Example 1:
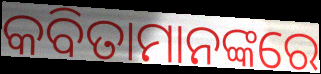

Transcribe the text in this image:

କବିତାମାନଙ୍କରେ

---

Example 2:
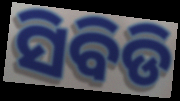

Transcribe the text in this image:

ସିବିଡି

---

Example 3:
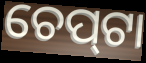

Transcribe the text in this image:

ଚେପ୍‍ଟା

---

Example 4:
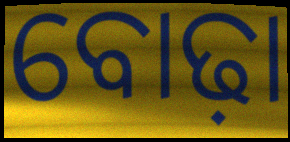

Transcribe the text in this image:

ବୋଢ଼ା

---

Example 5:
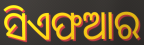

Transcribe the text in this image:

ସିଏଫଆର